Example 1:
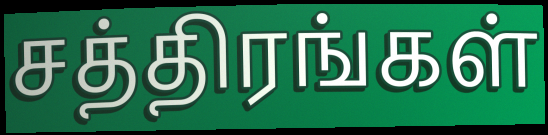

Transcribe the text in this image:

சத்திரங்கள்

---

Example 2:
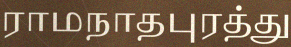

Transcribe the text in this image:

ராமநாதபுரத்து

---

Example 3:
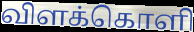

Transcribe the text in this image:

விளக்கொளி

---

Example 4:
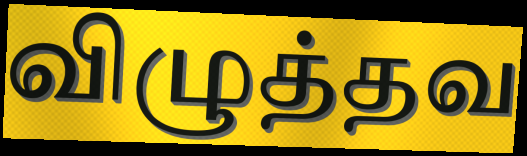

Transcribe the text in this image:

விழுத்தவ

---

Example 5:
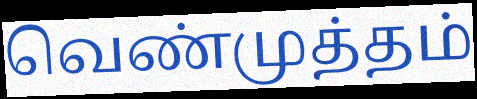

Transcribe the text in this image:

வெண்முத்தம்